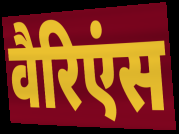
वैरिएंस